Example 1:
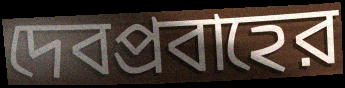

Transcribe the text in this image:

দেবপ্রবাহের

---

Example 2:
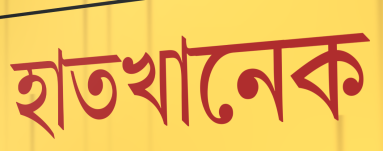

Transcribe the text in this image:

হাতখানেক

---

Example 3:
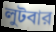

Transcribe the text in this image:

লুটবার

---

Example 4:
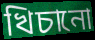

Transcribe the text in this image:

খিচানো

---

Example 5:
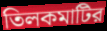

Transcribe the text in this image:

তিলকমাটির